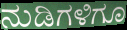
ನುಡಿಗಳಿಗೂ